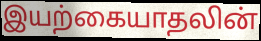
இயற்கையாதலின்